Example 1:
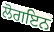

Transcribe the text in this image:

ਲੋਗਇਨ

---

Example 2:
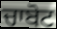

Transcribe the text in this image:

ਚਾਬੋਟ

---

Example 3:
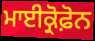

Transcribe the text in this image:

ਮਾਈਕ੍ਰੋਫ਼ੋਨ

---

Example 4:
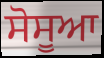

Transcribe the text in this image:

ਸੋਸੂਆ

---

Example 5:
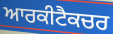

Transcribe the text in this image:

ਆਰਕੀਟੈਕਚਰ